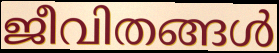
ജീവിതങ്ങൾ